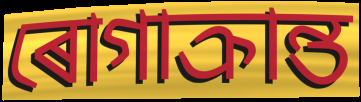
ৰোগাক্ৰান্ত